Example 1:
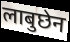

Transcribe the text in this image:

लाबुछेन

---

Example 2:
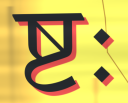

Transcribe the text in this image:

ष्टः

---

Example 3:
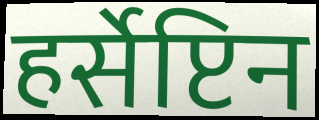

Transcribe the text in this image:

हर्सेप्टिन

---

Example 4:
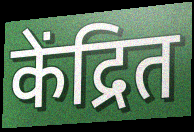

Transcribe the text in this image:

केंद्रित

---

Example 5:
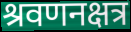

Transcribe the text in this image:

श्रवणनक्षत्र